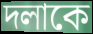
দলাকে